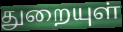
துறையுள்